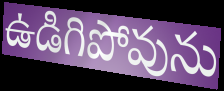
ఉడిగిపోవును